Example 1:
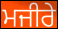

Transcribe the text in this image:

ਮਜੀਰੇ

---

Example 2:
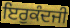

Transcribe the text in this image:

ਇਰੁਕੰਦਜੀ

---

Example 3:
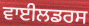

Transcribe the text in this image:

ਵਾਈਲਡਰਸ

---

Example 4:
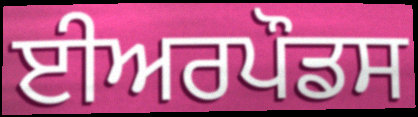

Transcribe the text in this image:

ਈਅਰਪੌਡਸ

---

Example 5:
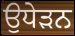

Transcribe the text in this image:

ਉਧੇੜਨ